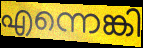
എന്നെങ്കി